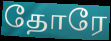
தோரே